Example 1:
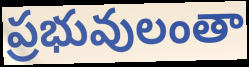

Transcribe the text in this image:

ప్రభువులంతా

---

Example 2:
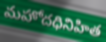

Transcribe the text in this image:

మహోదధినిహిత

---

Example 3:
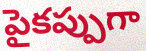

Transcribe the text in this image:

పైకప్పుగా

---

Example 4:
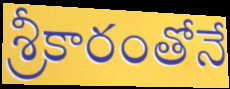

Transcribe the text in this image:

శ్రీకారంతోనే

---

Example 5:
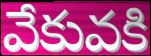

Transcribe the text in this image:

వేకువకి